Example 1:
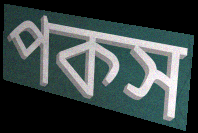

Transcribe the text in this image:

পকস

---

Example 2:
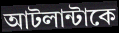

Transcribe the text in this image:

আটলান্টাকে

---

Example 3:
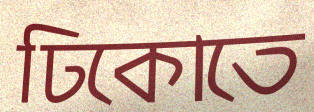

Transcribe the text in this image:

ঢিকোতে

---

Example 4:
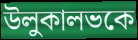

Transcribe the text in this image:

উলুকালভকে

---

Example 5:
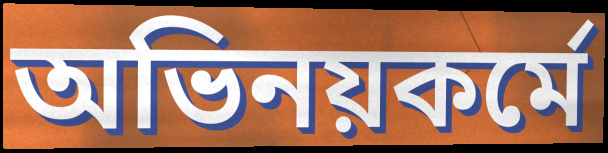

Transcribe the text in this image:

অভিনয়কর্মে